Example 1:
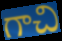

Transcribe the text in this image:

గాచి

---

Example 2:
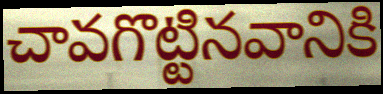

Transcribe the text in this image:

చావగొట్టినవానికి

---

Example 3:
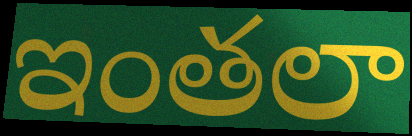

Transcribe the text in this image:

ఇంతలా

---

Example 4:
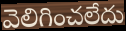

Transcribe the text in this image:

వెలిగించలేదు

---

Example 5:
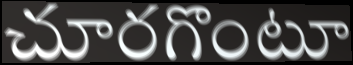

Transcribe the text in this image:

చూరగొంటూ